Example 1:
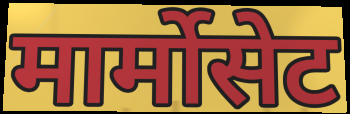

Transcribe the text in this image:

मार्मोसेट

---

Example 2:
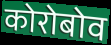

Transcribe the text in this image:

कोरोबोव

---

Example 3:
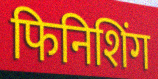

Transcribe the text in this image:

फिनिशिंग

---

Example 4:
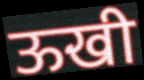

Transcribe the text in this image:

ऊखी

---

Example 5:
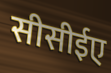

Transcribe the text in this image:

सीसीईए